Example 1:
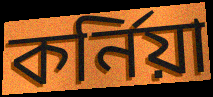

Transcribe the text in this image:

কৰ্নিয়া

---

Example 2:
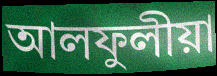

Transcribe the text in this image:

আলফুলীয়া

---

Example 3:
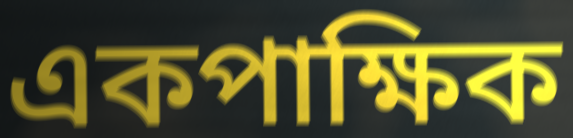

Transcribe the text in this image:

একপাক্ষিক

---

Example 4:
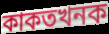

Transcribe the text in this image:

কাকতখনক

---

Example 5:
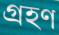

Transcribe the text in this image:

গ্ৰহণ